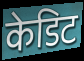
केडिट